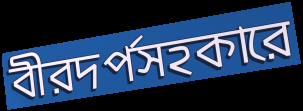
বীরদর্পসহকারে